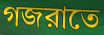
গজরাতে